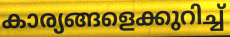
കാര്യങ്ങളെക്കുറിച്ച്